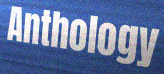
Anthology